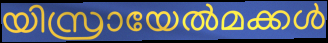
യിസ്രായേൽമക്കൾ